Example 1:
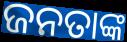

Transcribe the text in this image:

ଜନତାଙ୍କ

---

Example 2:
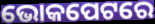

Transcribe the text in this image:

ଭୋକପେଟରେ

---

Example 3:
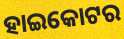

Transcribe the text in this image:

ହାଇକୋଟର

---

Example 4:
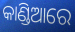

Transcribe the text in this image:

କାଣ୍ଡିଆରେ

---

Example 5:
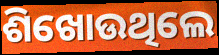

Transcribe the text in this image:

ଶିଖୋଉଥିଲେ